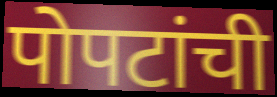
पोपटांची